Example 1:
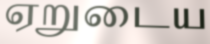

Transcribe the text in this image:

ஏறுடைய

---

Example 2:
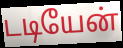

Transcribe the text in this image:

டடியேன்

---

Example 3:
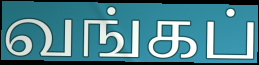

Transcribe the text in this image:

வங்கப்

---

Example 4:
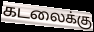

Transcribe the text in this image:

கடலைக்கு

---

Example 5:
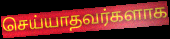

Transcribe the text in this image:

செய்யாதவர்களாக